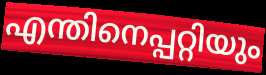
എന്തിനെപ്പറ്റിയും